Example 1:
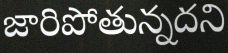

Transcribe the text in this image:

జారిపోతున్నదని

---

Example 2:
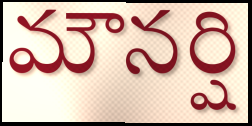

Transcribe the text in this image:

మౌనర్షి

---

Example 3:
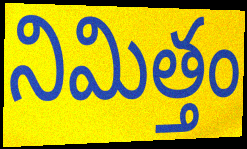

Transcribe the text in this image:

నిమిత్తం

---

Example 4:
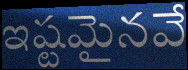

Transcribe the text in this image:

ఇష్టమైనవే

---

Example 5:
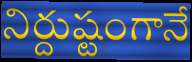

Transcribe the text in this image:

నిర్దుష్టంగానే